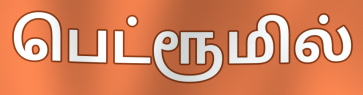
பெட்ரூமில்